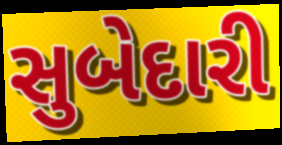
સુબેદારી